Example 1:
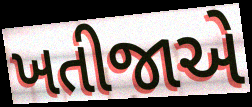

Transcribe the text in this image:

ખતીજાએ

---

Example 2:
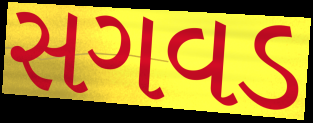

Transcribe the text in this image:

સગવડ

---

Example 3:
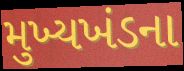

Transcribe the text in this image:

મુખ્યખંડના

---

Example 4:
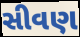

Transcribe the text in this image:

સીવણ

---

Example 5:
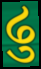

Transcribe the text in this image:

ઢુ